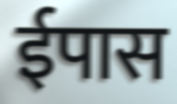
ईपास